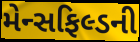
મેન્સફિલ્ડની